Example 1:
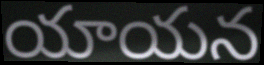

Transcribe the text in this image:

యాయన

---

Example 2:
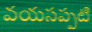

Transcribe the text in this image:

వయసప్పటి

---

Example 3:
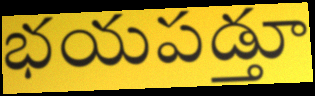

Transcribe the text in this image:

భయపడ్తూ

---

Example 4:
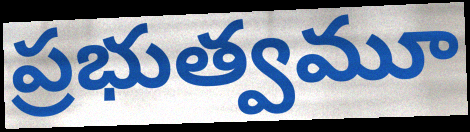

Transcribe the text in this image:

ప్రభుత్వమూ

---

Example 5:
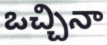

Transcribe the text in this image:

ఒచ్చినా